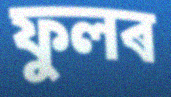
ফুলৰ